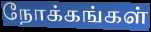
நோக்கங்கள்